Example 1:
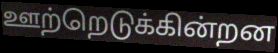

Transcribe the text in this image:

ஊற்றெடுக்கின்றன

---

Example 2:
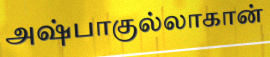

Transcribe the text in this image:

அஷ்பாகுல்லாகான்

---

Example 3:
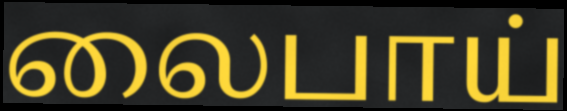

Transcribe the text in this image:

லைபாய்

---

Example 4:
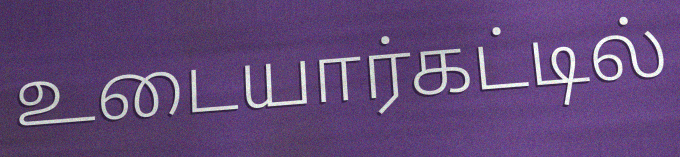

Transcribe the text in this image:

உடையார்கட்டில்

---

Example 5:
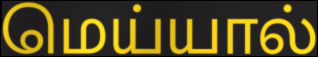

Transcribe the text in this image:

மெய்யால்